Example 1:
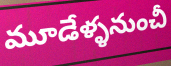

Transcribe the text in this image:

మూడేళ్ళనుంచీ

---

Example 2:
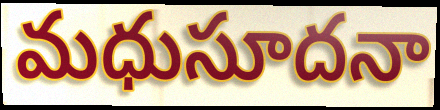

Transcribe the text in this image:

మధుసూదనా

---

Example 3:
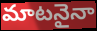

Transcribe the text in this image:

మాటనైనా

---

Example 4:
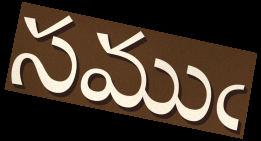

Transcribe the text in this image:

సముఁ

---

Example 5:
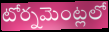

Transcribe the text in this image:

టోర్నమెంట్లలో